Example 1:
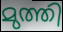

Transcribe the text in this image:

മുത്തി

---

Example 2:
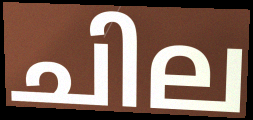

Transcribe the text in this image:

ചില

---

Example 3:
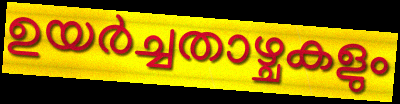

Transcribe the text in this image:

ഉയർച്ചതാഴ്ചകളും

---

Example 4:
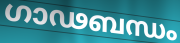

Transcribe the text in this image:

ഗാഢബന്ധം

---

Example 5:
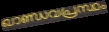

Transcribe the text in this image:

ഖാണ്ഡവപ്രസ്ഥം